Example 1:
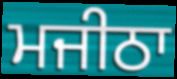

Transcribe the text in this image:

ਮਜੀਠਾ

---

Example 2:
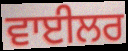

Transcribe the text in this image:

ਵਾਈਲਰ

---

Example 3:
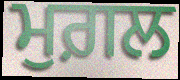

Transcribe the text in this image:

ਮੁਗ਼ਲ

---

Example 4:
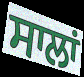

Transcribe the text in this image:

ਸਾਲਾਂ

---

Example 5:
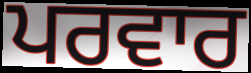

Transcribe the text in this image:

ਪਰਵਾਰ